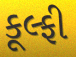
કૂલ્ફી